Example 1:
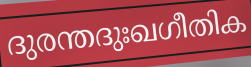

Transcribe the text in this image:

ദുരന്തദുഃഖഗീതിക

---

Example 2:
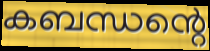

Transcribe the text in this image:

കബന്ധന്റെ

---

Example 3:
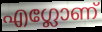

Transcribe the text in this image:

എഗ്ലോണ്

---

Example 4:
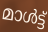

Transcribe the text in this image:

മാൾട്ട്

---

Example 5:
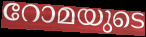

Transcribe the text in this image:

റോമയുടെ